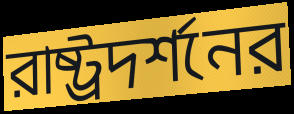
রাষ্ট্রদর্শনের